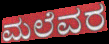
ಮಲೆವರ